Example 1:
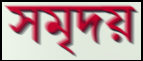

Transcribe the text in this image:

সমৃদয়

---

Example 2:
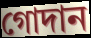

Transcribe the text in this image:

গোদান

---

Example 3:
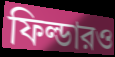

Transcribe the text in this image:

ফিল্ডারও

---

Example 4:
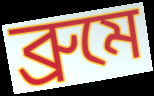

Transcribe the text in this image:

ব্রুমে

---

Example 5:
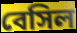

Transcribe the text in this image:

বেসিল